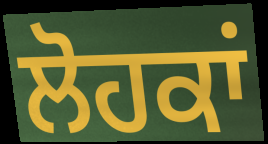
ਲੋਹਕਾਂ